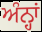
ਅੰਨ੍ਹਾਂ